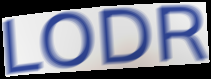
LODR